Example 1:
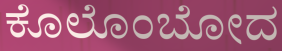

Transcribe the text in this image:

ಕೊಲೊಂಬೋದ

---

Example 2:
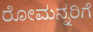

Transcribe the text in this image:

ರೋಮನ್ನರಿಗೆ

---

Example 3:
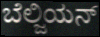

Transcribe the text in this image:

ಬೆಲ್ಜಿಯನ್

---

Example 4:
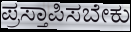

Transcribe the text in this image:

ಪ್ರಸ್ತಾಪಿಸಬೇಕು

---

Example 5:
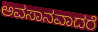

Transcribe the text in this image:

ಅವಸಾನವಾದರೆ